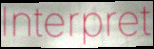
Interpret